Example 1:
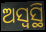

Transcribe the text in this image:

ଅସ୍ୱସ୍ଥି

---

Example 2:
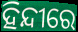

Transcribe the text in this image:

ହିନ୍ଦୀରେ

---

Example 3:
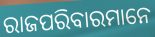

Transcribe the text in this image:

ରାଜପରିବାରମାନେ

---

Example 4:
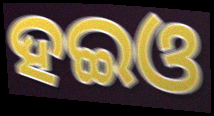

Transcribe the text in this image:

ହଇଓ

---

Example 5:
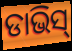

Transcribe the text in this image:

ଡାଭିସ୍